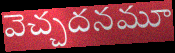
వెచ్చదనమూ